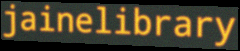
jainelibrary